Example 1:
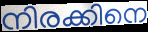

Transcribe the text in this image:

നിരക്കിനെ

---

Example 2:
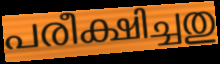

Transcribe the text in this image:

പരീക്ഷിച്ചതു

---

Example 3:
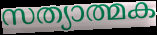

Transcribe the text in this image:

സത്യാത്മക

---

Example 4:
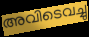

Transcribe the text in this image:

അവിടെവച്ചു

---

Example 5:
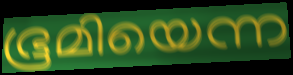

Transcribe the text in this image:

ഭൂമിയെന്ന